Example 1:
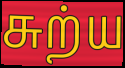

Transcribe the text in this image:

சுற்ய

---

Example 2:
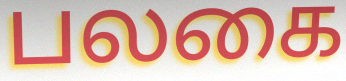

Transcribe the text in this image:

பலகை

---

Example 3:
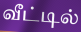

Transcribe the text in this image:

வீட்டில்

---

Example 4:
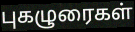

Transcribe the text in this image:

புகழுரைகள்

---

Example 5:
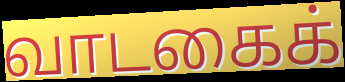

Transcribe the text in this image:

வாடகைக்